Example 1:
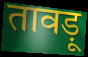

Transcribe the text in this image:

तावड़ू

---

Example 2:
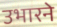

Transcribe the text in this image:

उभारने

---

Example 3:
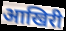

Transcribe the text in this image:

आखिरी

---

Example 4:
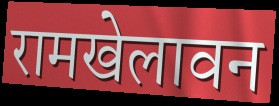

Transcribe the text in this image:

रामखेलावन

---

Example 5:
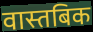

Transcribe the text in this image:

वास्तबिक